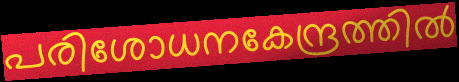
പരിശോധനകേന്ദ്രത്തിൽ